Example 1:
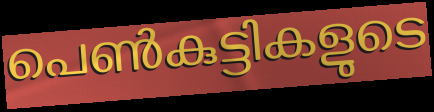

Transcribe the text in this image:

പെൺകുട്ടികളുടെ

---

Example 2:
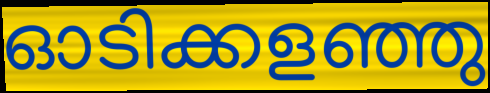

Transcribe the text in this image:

ഓടിക്കളഞ്ഞു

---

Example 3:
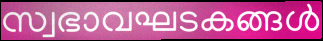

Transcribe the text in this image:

സ്വഭാവഘടകങ്ങൾ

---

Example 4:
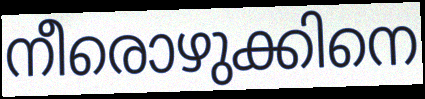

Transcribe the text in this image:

നീരൊഴുക്കിനെ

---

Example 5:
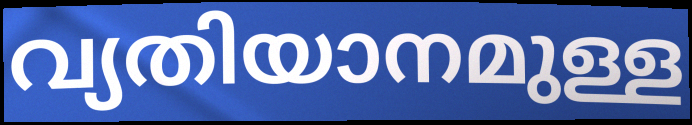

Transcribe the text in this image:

വ്യതിയാനമുള്ള